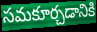
సమకూర్చడానికి